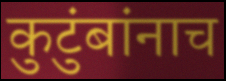
कुटुंबांनाच